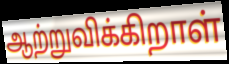
ஆற்றுவிக்கிறாள்